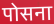
पोसना